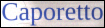
Caporetto